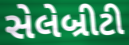
સેલેબ્રીટી